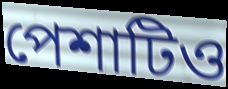
পেশাটিও